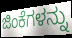
ಜಿಂಕೆಗಳನ್ನು